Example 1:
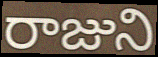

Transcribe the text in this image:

రాజుని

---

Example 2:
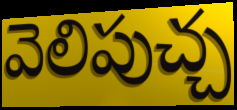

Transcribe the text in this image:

వెలిపుచ్చ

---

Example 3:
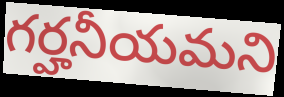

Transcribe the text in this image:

గర్హనీయమని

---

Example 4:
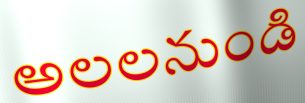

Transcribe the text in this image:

అలలనుండి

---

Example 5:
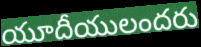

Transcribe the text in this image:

యూదీయులందరు